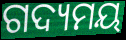
ଗଦ୍ୟମୟ